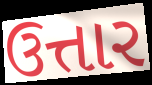
ઉત્તાર